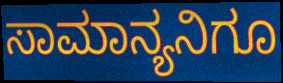
ಸಾಮಾನ್ಯನಿಗೂ